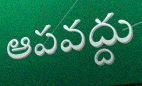
ఆపవద్దు